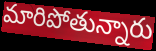
మారిపోతున్నారు